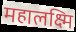
महालक्ष्मि